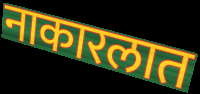
नाकारलात